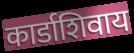
कार्डाशिवाय